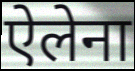
ऐलेना